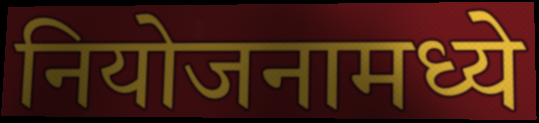
नियोजनामध्ये